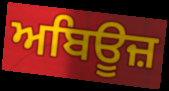
ਅਬਿਊਜ਼